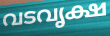
വടവൃക്ഷ